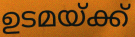
ഉടമയ്ക്ക്